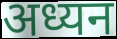
अध्यन